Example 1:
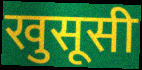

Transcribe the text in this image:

खुसूसी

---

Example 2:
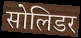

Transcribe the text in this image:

सोलिडर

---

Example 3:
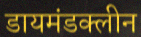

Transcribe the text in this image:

डायमंडक्लीन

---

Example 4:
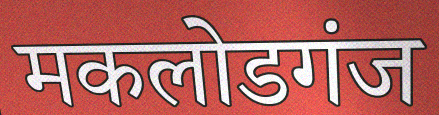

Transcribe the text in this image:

मकलोडगंज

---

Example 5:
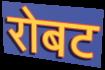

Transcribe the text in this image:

रोबट